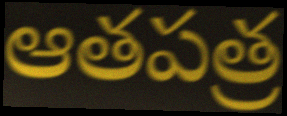
ఆతపత్ర